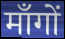
माँगों